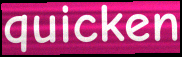
quicken